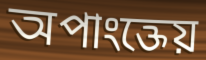
অপাংক্তেয়